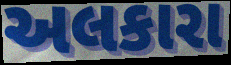
અલકારા